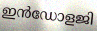
ഇൻഡോളജി